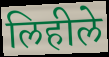
लिहीले